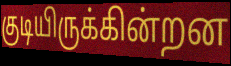
குடியிருக்கின்றன